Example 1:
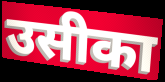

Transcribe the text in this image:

उसीका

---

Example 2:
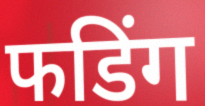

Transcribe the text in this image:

फडिंग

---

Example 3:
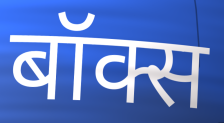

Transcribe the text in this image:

बॉक्स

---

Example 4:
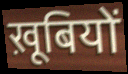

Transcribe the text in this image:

ख़ूबियों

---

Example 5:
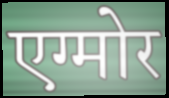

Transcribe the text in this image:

एग्मोर